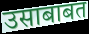
उसाबाबत